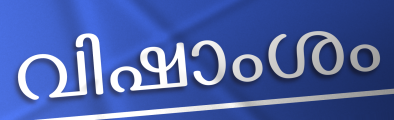
വിഷാംശം